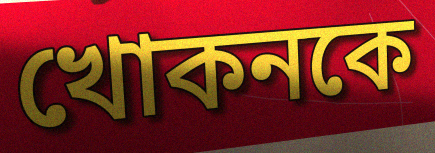
খোকনকে